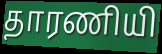
தாரணியி